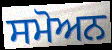
ਸਮੋਅਨ